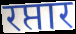
रप्तार